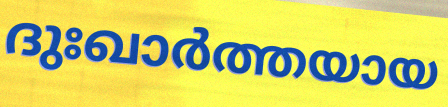
ദുഃഖാർത്തയായ